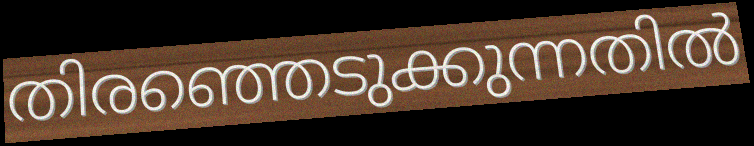
തിരഞ്ഞെടുക്കുന്നതിൽ